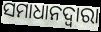
ସମାଧାନଦ୍ୱାରା